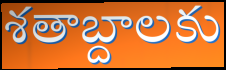
శతాబ్దాలకు